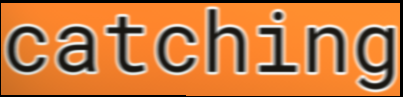
catching